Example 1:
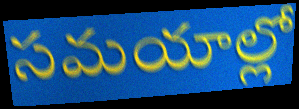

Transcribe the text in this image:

సమయాల్లో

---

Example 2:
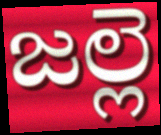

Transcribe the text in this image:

జల్లె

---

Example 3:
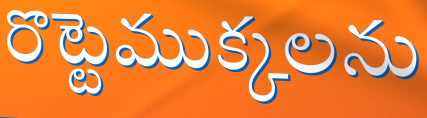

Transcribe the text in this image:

రొట్టెముక్కలను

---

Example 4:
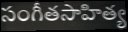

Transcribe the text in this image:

సంగీతసాహిత్య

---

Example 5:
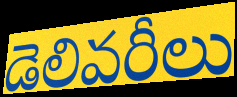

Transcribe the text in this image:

డెలివరీలు